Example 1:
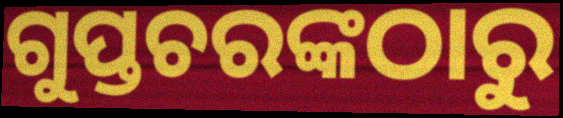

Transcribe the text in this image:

ଗୁପ୍ତଚରଙ୍କଠାରୁ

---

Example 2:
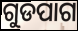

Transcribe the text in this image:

ଗୁଡପାଗ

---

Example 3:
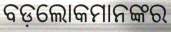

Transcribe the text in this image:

ବଡ଼ଲୋକମାନଙ୍କର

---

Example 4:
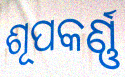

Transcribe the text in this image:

ଶୂପକର୍ଣ୍ଣ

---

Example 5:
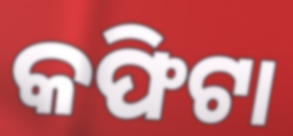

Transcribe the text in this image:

କଫିଟା